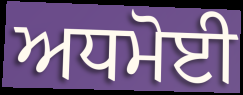
ਅਧਮੋਈ